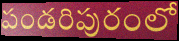
పండరిపురంలో